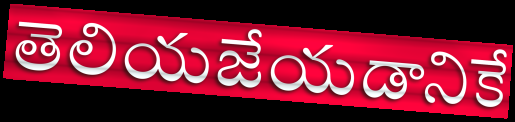
తెలియజేయడానికే